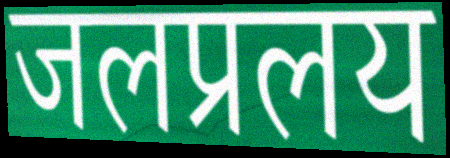
जलप्रलय